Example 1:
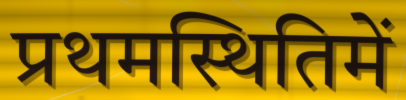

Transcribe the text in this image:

प्रथमस्थितिमें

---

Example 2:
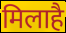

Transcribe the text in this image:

मिलाहै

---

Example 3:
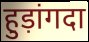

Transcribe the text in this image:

हुड़ांगदा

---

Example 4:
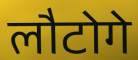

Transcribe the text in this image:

लौटोगे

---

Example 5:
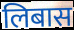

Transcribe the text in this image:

लिबास